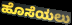
ಹೊಸೆಯಲು